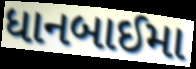
ધાનબાઈમા